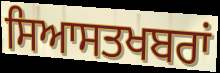
ਸਿਆਸਤਖਬਰਾਂ